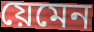
য়েমেন